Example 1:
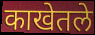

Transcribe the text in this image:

काखेतले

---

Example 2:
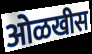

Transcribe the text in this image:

ओळखीस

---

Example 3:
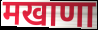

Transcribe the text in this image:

मखाणा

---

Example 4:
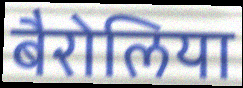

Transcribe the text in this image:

बैरोलिया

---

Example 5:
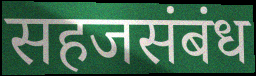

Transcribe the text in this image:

सहजसंबंध